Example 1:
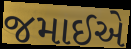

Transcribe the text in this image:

જમાઈએ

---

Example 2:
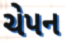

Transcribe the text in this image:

ચેપન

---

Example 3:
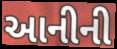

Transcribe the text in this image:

આનીની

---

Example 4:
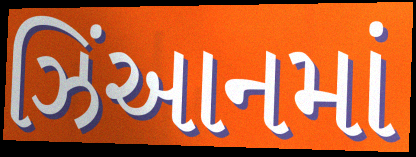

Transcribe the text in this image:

ઝિંઆનમાં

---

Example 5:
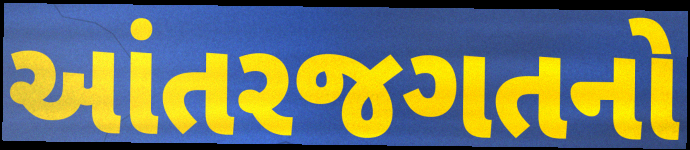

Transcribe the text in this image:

આંતરજગતનો